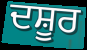
ਦਸ਼ੂਰ